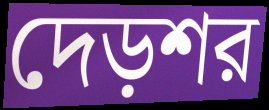
দেড়শর